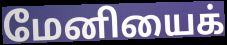
மேனியைக்